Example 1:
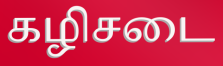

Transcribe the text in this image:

கழிசடை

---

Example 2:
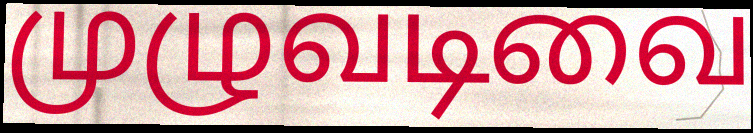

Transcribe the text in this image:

முழுவடிவை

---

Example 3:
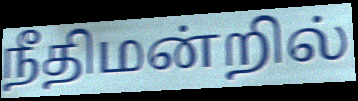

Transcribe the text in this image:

நீதிமன்றில்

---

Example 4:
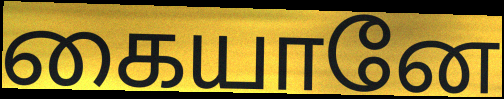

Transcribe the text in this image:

கையானே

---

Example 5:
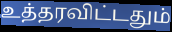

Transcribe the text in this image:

உத்தரவிட்டதும்